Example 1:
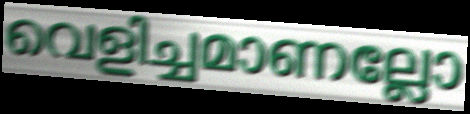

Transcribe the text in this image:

വെളിച്ചമാണല്ലോ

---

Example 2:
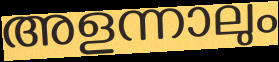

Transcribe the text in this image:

അളന്നാലും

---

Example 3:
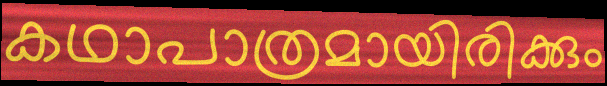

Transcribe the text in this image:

കഥാപാത്രമായിരിക്കും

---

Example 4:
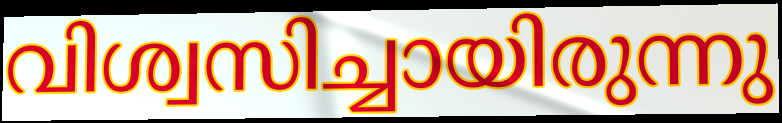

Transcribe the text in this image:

വിശ്വസിച്ചായിരുന്നു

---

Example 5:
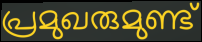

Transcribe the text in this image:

പ്രമുഖരുമുണ്ട്